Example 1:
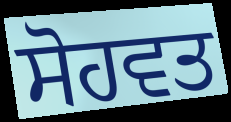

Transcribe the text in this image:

ਸੋਹਵਤ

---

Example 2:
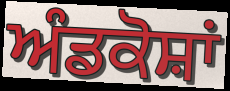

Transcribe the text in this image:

ਅੰਡਕੋਸ਼ਾਂ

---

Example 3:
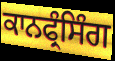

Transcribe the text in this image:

ਕਾਨਫ੍ਰੰਸਿੰਗ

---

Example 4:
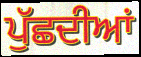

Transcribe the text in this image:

ਪੁੱਛਦੀਆਂ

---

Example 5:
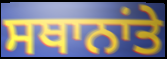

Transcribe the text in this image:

ਸਥਾਨਾਂਤੇ